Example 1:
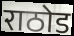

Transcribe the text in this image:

राठोड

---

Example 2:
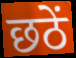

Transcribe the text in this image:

छठें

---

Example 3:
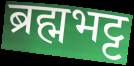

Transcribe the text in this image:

ब्रह्मभट्ट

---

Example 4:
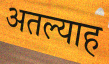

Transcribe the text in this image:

अतल्याह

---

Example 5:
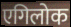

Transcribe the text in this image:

एगिलोक